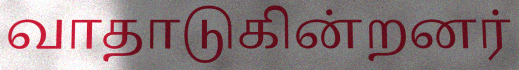
வாதாடுகின்றனர்